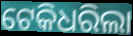
ଟେକିଧରିଲା